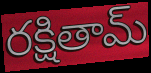
రక్షితామ్